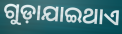
ଗୁଡ଼ାଯାଇଥାଏ